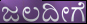
ಜಲದೀಗೆ